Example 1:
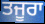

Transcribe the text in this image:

ਤਜੂਰਾ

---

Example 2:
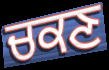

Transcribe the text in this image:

ਚਕਣ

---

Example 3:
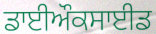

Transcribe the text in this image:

ਡਾਈਔਕਸਾਈਡ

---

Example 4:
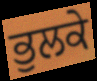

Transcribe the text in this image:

ਭੁਲਕੇ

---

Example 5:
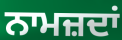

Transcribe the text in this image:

ਨਾਮਜ਼ਦਾਂ